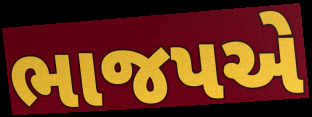
ભાજપએ